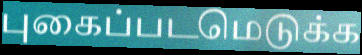
புகைப்படமெடுக்க